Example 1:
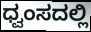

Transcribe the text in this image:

ಧ್ವಂಸದಲ್ಲಿ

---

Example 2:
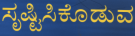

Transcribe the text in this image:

ಸೃಷ್ಟಿಸಿಕೊಡುವ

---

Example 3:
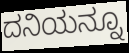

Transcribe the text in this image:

ದನಿಯನ್ನೂ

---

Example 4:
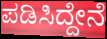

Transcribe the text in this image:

ಪಡಿಸಿದ್ದೇನೆ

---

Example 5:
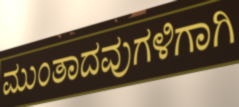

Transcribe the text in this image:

ಮುಂತಾದವುಗಳಿಗಾಗಿ